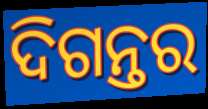
ଦିଗନ୍ତର